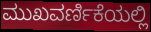
ಮುಖವರ್ಣಿಕೆಯಲ್ಲಿ